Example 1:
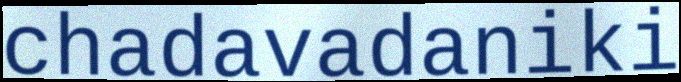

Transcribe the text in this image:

chadavadaniki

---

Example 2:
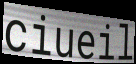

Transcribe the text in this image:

ciueil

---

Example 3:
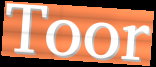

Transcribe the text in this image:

Toor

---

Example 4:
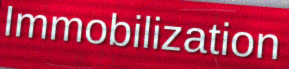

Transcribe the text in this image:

Immobilization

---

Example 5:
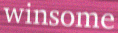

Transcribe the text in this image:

winsome